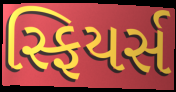
સ્ફિયર્સ